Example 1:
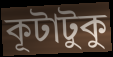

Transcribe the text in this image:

কূটাটুকু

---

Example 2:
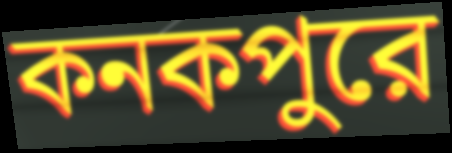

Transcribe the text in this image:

কনকপুরে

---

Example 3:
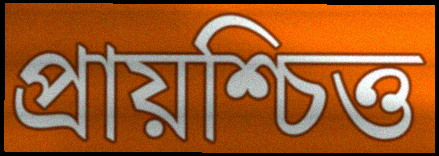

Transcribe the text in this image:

প্রায়শ্চিত্ত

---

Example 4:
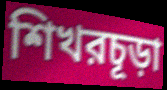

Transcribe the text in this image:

শিখরচূড়া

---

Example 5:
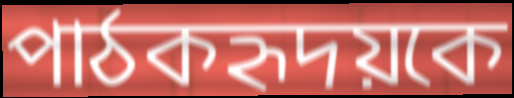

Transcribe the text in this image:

পাঠকহৃদয়কে